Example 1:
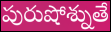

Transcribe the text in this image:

పురుషోశ్నుతే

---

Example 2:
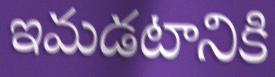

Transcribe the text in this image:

ఇమడటానికి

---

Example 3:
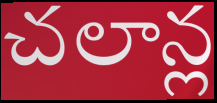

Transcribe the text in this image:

చలాన్ల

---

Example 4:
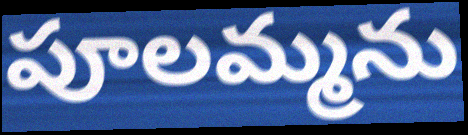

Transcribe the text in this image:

పూలమ్మను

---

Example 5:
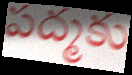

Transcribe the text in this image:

పద్మకు